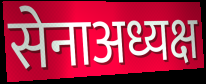
सेनाअध्यक्ष